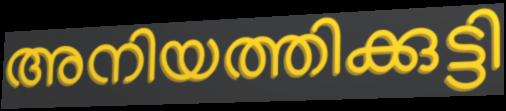
അനിയത്തിക്കുട്ടി